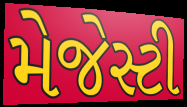
મેજેસ્ટી